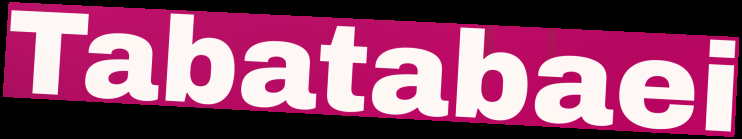
Tabatabaei